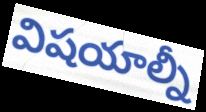
విషయాల్నీ